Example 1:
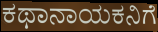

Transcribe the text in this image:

ಕಥಾನಾಯಕನಿಗೆ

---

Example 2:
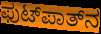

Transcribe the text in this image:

ಫುಟ್‌ಪಾತ್‌ನ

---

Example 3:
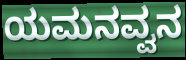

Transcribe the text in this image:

ಯಮನವ್ವನ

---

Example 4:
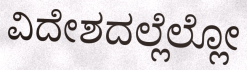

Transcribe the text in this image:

ವಿದೇಶದಲ್ಲೆಲ್ಲೋ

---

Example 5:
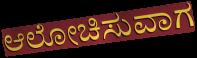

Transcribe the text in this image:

ಆಲೋಚಿಸುವಾಗ